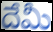
దేమీ